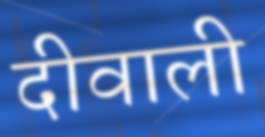
दीवाली